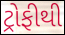
ટ્રોફીથી